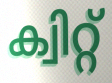
ക്വിറ്റ്